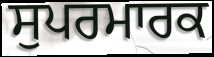
ਸੁਪਰਮਾਰਕ